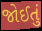
જોઈતું